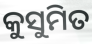
କୁସୁମିତ